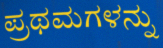
ಪ್ರಥಮಗಳನ್ನು